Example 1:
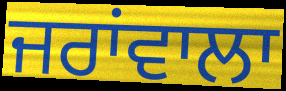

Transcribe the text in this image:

ਜਰਾਂਵਾਲਾ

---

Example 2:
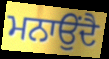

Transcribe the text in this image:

ਮਨਾਉਂਦੈ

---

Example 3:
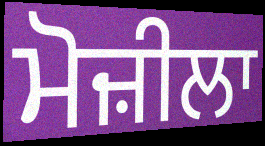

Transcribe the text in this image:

ਮੋਜ਼ੀਲਾ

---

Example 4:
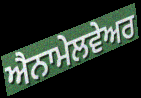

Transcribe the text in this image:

ਐਨਾਮੇਲਵੇਅਰ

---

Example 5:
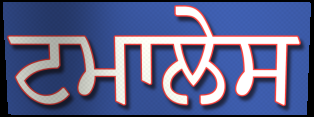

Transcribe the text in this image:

ਟਮਾਲੇਸ